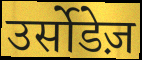
उर्सोडेज़